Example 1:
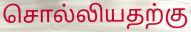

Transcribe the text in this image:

சொல்லியதற்கு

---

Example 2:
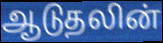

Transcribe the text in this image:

ஆடுதலின்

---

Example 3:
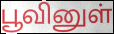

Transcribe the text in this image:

பூவினுள்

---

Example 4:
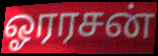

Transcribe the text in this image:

ஓரரசன்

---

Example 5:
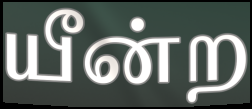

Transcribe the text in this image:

யீன்ற